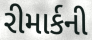
રીમાર્કની